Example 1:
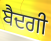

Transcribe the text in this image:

ਬੈਦਗੀ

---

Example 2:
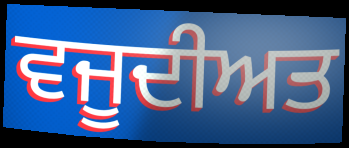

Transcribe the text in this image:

ਵਜੂਦੀਅਤ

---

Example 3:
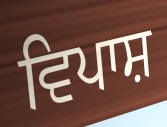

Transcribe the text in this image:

ਵਿਪਾਸ਼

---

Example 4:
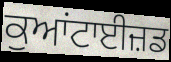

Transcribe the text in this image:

ਕੁਆਂਟਾਈਜ਼ਡ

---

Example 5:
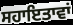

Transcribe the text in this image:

ਸਹਾਇਤਾਵਾਂ